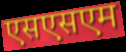
एसएसएम